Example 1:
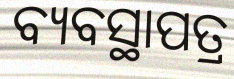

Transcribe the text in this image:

ବ୍ୟବସ୍ଥାପତ୍ର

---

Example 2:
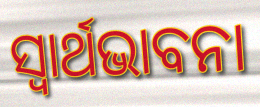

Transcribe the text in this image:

ସ୍ଵାର୍ଥଭାବନା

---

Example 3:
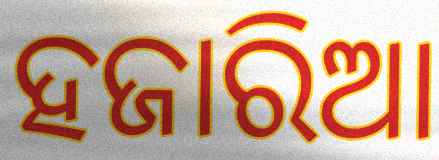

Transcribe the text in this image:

ହଜାରିଆ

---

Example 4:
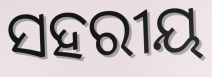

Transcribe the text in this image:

ସହରୀୟ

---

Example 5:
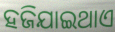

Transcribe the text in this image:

ହଜିଯାଇଥାଏ